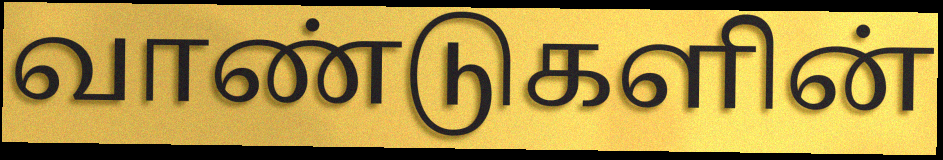
வாண்டுகளின்